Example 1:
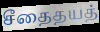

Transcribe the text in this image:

சீதைதயத்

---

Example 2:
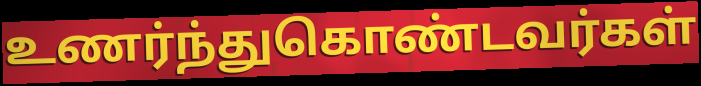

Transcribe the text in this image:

உணர்ந்துகொண்டவர்கள்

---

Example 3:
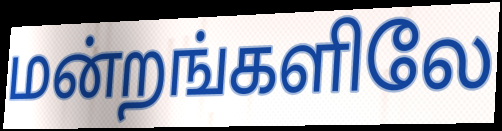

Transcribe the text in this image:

மன்றங்களிலே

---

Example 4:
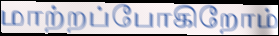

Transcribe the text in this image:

மாற்றப்போகிறோம்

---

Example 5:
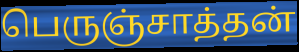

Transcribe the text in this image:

பெருஞ்சாத்தன்